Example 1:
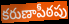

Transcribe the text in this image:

కరుణాపీఠపు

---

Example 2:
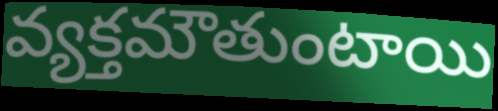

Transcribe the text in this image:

వ్యక్తమౌతుంటాయి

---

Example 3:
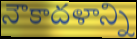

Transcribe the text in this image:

నౌకాదళాన్ని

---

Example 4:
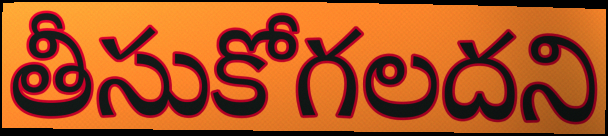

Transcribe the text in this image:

తీసుకోగలదని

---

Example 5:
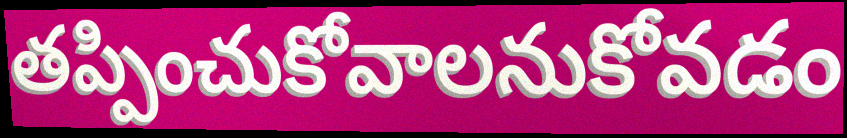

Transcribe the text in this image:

తప్పించుకోవాలనుకోవడం